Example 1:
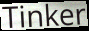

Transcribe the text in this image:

Tinker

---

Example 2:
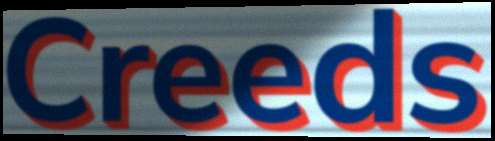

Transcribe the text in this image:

Creeds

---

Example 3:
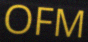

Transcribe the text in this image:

OFM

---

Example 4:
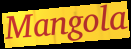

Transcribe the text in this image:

Mangola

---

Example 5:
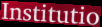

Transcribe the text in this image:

Institutio